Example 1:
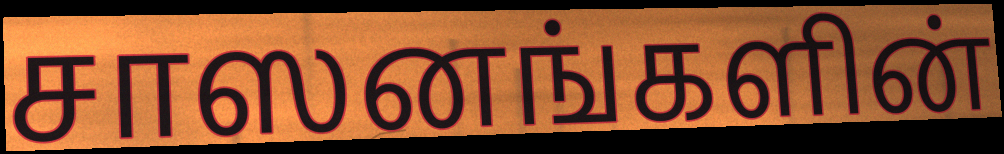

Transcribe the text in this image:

சாஸனங்களின்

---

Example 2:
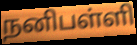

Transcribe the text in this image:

நனிபள்ளி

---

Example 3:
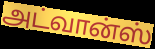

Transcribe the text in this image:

அட்வான்ஸ்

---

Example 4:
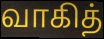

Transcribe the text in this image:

வாகித்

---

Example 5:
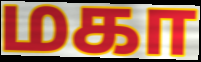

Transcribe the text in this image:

மகா